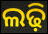
ଲଢ଼ି